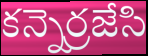
కన్నెర్రజేసి